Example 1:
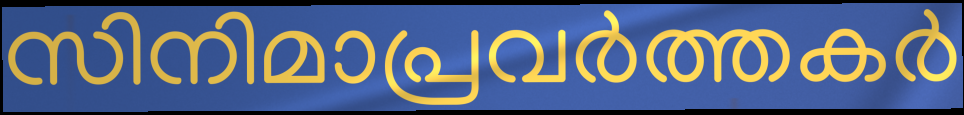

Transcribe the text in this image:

സിനിമാപ്രവർത്തകർ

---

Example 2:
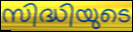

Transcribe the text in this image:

സിദ്ധിയുടെ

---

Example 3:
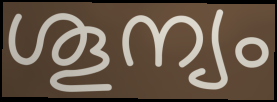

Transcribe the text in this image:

ശൂന്യം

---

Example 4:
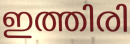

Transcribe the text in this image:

ഇത്തിരി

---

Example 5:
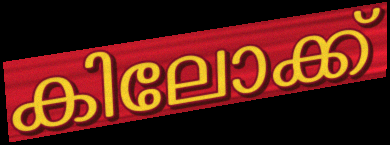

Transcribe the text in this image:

കിലോക്ക്